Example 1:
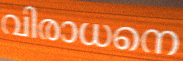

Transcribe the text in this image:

വിരാധനെ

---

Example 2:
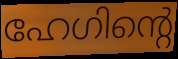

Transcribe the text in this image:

ഹേഗിന്റെ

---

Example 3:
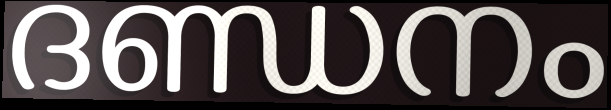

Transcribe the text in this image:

ദണ്ഡനം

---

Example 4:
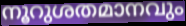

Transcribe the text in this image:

നൂറുശതമാനവും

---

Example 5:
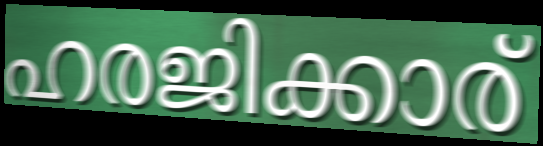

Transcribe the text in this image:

ഹരജിക്കാര്